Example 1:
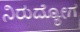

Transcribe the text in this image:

ನಿರುದ್ಯೋಗ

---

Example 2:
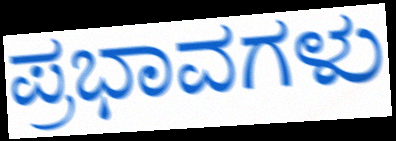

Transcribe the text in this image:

ಪ್ರಭಾವಗಳು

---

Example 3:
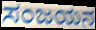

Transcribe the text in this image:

ಸಂಜಯನ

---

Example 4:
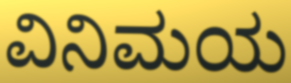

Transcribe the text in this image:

ವಿನಿಮಯ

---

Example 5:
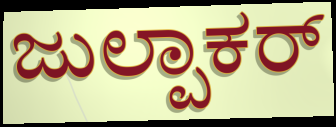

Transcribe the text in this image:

ಜುಲ್ಪಾಕರ್